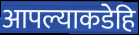
आपल्याकडेहि